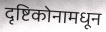
दृष्टिकोनामधून